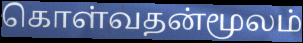
கொள்வதன்மூலம்